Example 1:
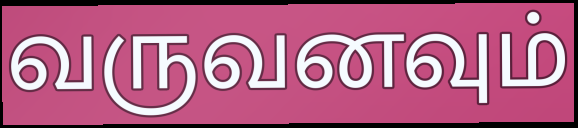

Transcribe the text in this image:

வருவனவும்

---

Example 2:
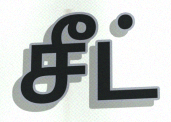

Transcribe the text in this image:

சீட்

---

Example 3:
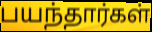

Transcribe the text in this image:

பயந்தார்கள்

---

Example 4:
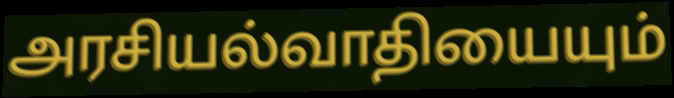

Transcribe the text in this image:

அரசியல்வாதியையும்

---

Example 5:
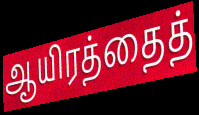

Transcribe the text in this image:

ஆயிரத்தைத்